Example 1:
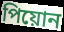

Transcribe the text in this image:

পিয়োন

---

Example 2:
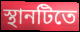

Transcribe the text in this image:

স্থানটিতে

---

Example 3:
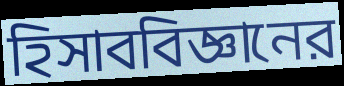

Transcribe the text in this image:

হিসাববিজ্ঞানের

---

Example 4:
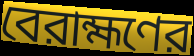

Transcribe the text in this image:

বেরাহ্মণের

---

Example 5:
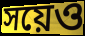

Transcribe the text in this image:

সয়েও